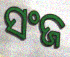
ସଂଜ